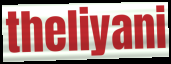
theliyani